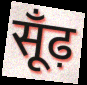
सूँढ़